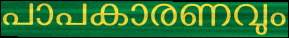
പാപകാരണവും